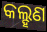
କଲ୍ହଣ